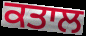
ਕਤਾਲ